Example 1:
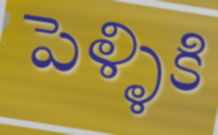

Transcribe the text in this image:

పెళ్ళికి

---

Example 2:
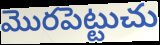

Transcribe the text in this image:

మొరపెట్టుచు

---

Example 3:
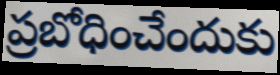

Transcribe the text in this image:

ప్రబోధించేందుకు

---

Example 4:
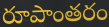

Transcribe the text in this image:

రూపాంతరం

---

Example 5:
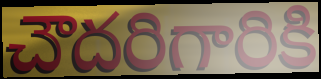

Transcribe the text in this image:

చౌదరిగారికి